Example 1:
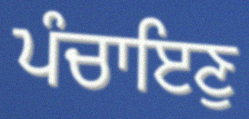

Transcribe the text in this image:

ਪੰਚਾਇਣੁ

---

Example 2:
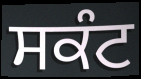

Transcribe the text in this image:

ਸਕੰਟ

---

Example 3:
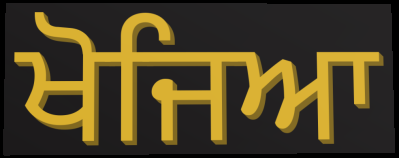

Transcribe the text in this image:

ਖੋਜਿਆ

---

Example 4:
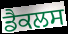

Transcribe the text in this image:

ਡੈਕਲਸ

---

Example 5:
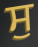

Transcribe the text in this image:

ਸੁ